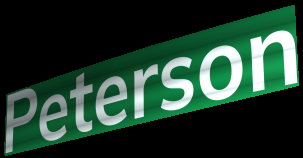
Peterson